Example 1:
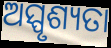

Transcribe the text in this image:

ଅସ୍ପୃଶ୍ୟତା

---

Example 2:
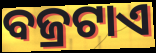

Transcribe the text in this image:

ବଜ୍ରଟାଏ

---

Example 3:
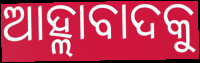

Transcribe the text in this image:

ଆହ୍ଲାବାଦକୁ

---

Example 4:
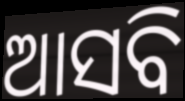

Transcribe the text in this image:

ଆସବି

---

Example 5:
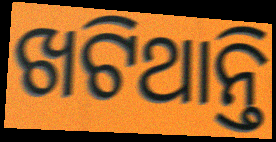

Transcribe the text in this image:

ଖଟିଥାନ୍ତି